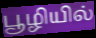
பூழியில்